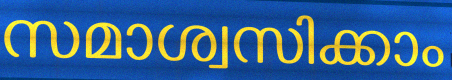
സമാശ്വസിക്കാം